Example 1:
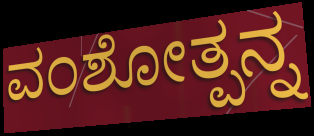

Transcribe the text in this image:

ವಂಶೋತ್ಪನ್ನ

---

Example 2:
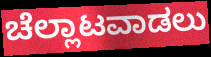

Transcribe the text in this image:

ಚೆಲ್ಲಾಟವಾಡಲು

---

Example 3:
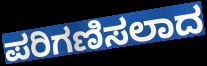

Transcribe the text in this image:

ಪರಿಗಣಿಸಲಾದ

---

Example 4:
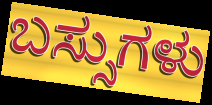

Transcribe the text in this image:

ಬಸ್ಸುಗಳು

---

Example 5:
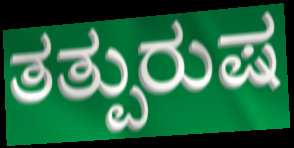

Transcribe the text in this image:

ತತ್ಪುರುಷ